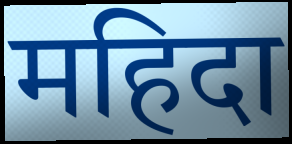
महिदा